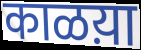
काळय़ा